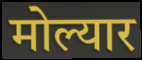
मोल्यार